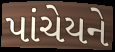
પાંચેયને